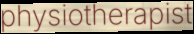
physiotherapist